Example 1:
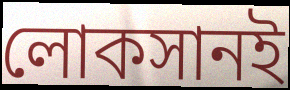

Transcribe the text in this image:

লোকসানই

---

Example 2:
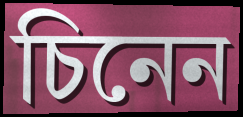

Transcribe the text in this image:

চিনেন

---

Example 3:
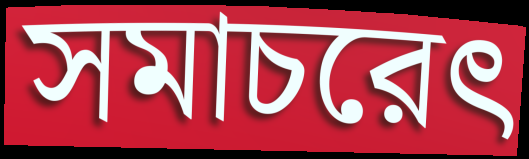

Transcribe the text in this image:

সমাচরেৎ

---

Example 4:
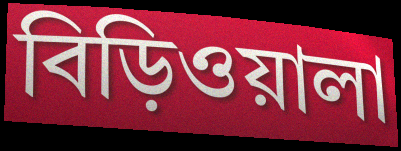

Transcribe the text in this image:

বিড়িওয়ালা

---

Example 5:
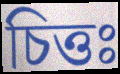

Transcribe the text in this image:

চিত্তঃ